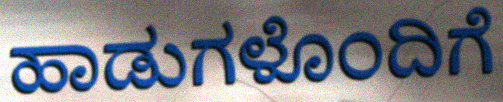
ಹಾಡುಗಳೊಂದಿಗೆ